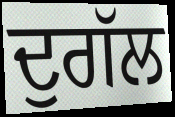
ਦੁਗੱਲ